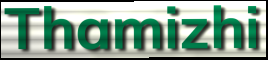
Thamizhi